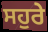
ਸਹੁਰੇ